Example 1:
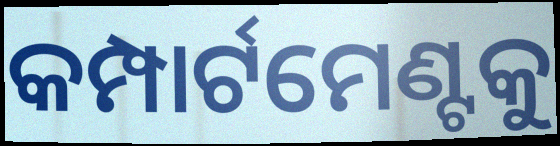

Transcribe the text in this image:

କମ୍ପାର୍ଟମେଣ୍ଟକୁ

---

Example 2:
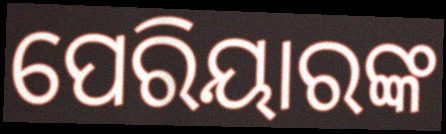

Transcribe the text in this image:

ପେରିୟାରଙ୍କ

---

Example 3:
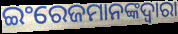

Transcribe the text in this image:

ଇଂରେଜମାନଙ୍କଦ୍ୱାରା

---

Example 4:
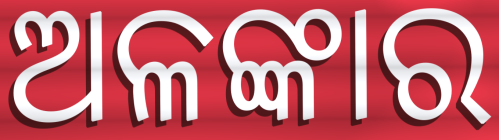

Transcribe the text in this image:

ଅଳଙ୍କାର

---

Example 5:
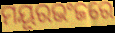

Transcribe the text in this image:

ମୟୂରଭଂଜରେ